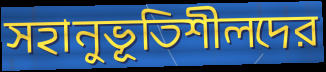
সহানুভূতিশীলদের